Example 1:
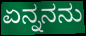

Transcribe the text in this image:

ಏನ್ನನನು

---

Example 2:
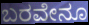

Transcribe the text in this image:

ಬರವೇನೂ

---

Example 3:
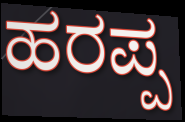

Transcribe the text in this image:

ಹರಪ್ಪ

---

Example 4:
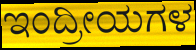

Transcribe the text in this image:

ಇಂದ್ರೀಯಗಳ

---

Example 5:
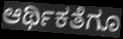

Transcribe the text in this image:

ಆರ್ಥಿಕತೆಗೂ